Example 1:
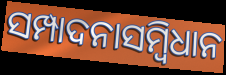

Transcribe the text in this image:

ସମ୍ପାଦନାସମ୍ବିଧାନ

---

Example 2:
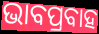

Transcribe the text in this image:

ଭାବପ୍ରବାହ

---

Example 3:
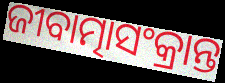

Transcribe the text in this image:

ଜୀବାତ୍ମାସଂକ୍ରାନ୍ତ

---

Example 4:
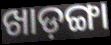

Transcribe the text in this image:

ଖାଡ଼ଙ୍ଗା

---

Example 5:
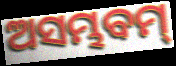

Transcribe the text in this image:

ଅସମ୍ଭବମ୍